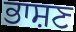
ਭਾਸ਼ਣ